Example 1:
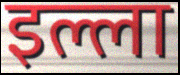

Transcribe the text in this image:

इल्ला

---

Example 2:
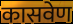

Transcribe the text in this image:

कासवेण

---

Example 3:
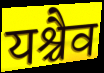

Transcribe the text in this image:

यश्चैव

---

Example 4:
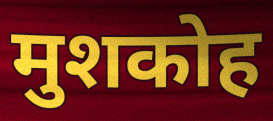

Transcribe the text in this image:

मुशकोह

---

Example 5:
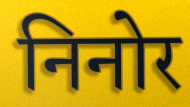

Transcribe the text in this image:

निनोर